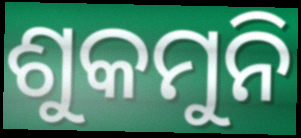
ଶୁକମୁନି